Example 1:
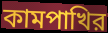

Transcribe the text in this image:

কামপাখির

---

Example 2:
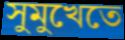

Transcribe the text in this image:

সুমুখেতে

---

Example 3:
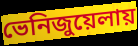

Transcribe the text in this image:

ভেনিজুয়েলায়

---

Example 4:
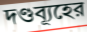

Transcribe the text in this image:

দণ্ডব্যূহের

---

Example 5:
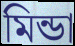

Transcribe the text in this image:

মিন্ডা